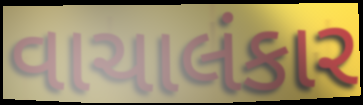
વાચાલંકાર